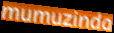
mumuzinda